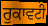
ਰੁਕਾਵਟੀ